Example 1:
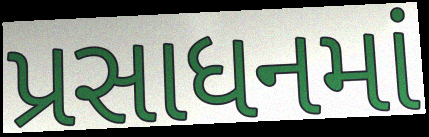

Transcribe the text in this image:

પ્રસાધનમાં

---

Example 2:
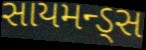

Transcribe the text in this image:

સાયમન્ડ્સ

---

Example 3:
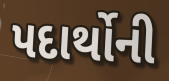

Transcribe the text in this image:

પદાર્થોની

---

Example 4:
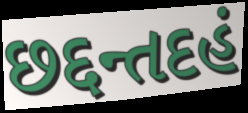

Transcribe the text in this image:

છદ્દન્તદહં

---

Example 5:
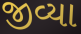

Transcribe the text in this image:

જીવ્યા